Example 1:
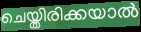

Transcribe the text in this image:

ചെയ്തിരിക്കയാൽ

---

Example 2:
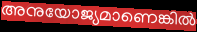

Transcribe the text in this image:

അനുയോജ്യമാണെങ്കിൽ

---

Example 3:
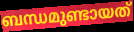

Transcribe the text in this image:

ബന്ധമുണ്ടായത്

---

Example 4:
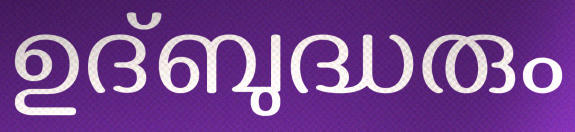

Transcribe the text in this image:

ഉദ്ബുദ്ധരും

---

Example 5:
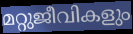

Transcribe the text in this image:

മറ്റുജീവികളും